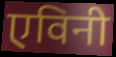
एविनी